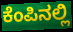
ಕೆಂಪಿನಲ್ಲಿ